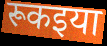
रूकइया